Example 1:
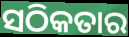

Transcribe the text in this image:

ସଠିକତାର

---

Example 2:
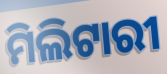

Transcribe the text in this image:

ମିଲିଟାରୀ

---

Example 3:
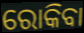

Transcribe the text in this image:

ରୋକିବା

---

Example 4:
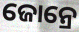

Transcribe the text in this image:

ଜୋନ୍ରେ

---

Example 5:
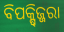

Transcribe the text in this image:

ବିପକ୍ଷ୍ଜ୍ଜିରା